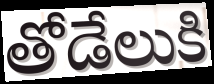
తోడేలుకి